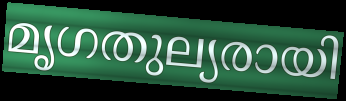
മൃഗതുല്യരായി